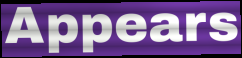
Appears